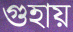
গুহায়